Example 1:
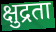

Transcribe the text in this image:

क्षुद्रता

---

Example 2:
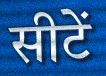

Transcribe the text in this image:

सीटें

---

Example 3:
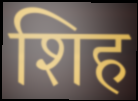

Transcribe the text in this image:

शिह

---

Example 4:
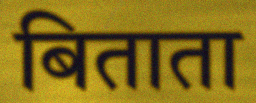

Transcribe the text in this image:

बिताता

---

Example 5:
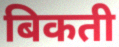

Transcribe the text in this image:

बिकती